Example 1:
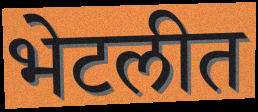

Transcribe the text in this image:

भेटलीत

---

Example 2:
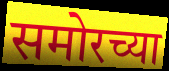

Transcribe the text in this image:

समोरच्या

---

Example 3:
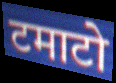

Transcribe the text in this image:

टमाटो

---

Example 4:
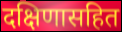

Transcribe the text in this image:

दक्षिणासहित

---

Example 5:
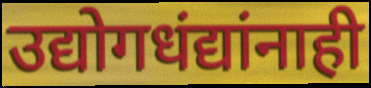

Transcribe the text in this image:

उद्योगधंद्यांनाही